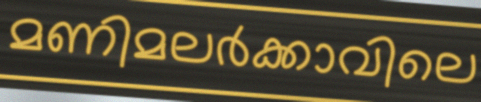
മണിമലർക്കാവിലെ